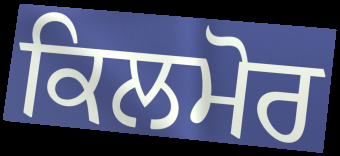
ਕਿਲਮੋਰ